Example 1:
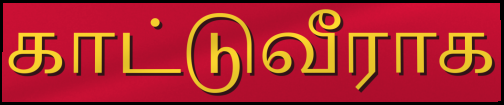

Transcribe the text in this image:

காட்டுவீராக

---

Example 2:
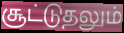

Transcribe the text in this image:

சூட்டுதலும்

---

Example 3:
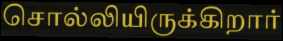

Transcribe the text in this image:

சொல்லியிருக்கிறார்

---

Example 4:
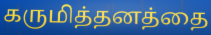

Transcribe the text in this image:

கருமித்தனத்தை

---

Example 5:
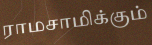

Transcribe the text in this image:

ராமசாமிக்கும்